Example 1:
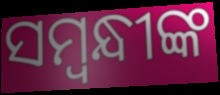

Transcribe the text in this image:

ସମ୍ବନ୍ଧୀଙ୍କ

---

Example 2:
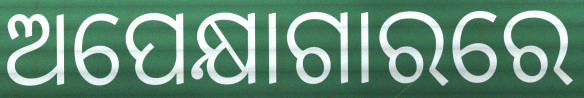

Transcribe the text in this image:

ଅପେକ୍ଷାଗାରରେ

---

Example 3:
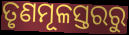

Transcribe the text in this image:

ତୃଣମୂଳସ୍ତରରୁ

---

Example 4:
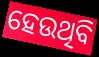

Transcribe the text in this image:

ହେଉଥିବି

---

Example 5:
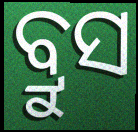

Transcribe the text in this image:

ବ୍ରୁସ